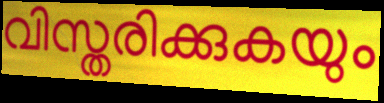
വിസ്തരിക്കുകയും